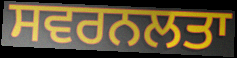
ਸਵਰਨਲਤਾ